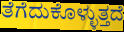
ತೆಗೆದುಕೊಳ್ಳುತ್ತದೆ